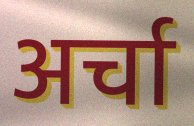
अर्चा